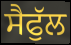
ਸੈਫੁੱਲ